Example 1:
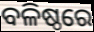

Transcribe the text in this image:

ବଳିଷ୍ଠରେ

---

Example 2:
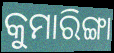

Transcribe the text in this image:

କୁମାରିଙ୍ଗା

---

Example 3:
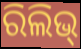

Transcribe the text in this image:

ରିଲିଭ୍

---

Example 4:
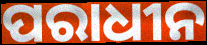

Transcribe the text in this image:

ପରାଧୀନ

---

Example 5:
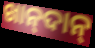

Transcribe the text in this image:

ଖାନ୍‍ଦାନ୍